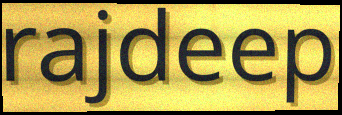
rajdeep